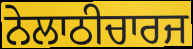
ਨੇਲਾਠੀਚਾਰਜ